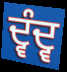
ਦ੍ਵੰਦ੍ਵ